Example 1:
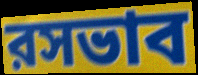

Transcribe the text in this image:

রসভাব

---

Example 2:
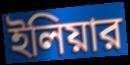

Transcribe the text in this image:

ইলিয়ার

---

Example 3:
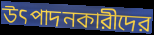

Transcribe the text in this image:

উৎপাদনকারীদের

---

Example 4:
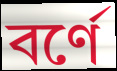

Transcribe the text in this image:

বর্ণে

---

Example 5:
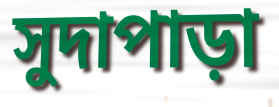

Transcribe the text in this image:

সুদাপাড়া